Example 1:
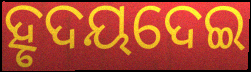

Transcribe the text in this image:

ହୃଦୟଦେଇ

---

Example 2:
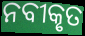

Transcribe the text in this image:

ନବୀକୃତ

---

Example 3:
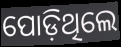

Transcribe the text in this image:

ପୋଡ଼ିଥିଲେ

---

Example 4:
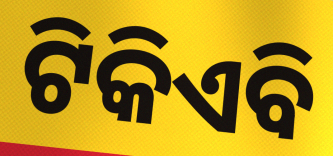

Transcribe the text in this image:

ଟିକିଏବି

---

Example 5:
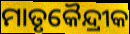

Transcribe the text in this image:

ମାତୃକୈନ୍ଦ୍ରୀକ